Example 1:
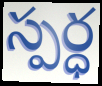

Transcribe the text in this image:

స్పర్ధ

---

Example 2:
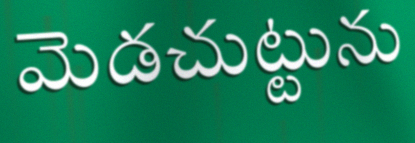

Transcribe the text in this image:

మెడచుట్టును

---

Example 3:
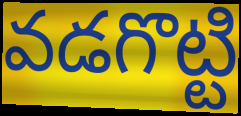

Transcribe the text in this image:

వడగొట్టి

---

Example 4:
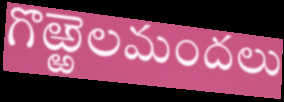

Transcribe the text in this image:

గొఱ్ఱెలమందలు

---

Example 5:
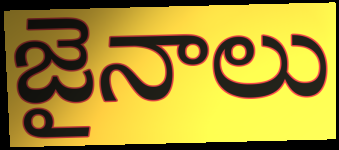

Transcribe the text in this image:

జైనాలు